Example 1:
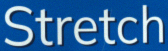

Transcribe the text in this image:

Stretch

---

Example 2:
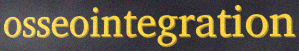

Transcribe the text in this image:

osseointegration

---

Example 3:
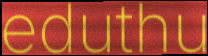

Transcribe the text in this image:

eduthu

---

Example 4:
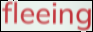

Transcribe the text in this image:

fleeing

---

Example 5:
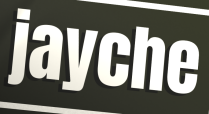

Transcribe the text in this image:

jayche